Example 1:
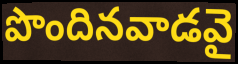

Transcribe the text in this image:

పొందినవాడవై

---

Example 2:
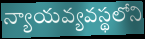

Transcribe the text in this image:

న్యాయవ్యవస్థలోని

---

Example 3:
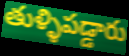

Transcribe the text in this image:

తుళ్ళిపడ్డారు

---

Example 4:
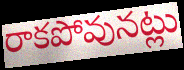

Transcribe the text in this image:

రాకపోవునట్లు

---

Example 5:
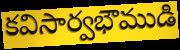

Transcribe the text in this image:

కవిసార్వభౌముడి